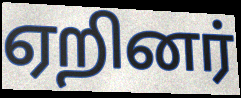
ஏறினர்